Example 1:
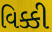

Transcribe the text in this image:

વિક્કી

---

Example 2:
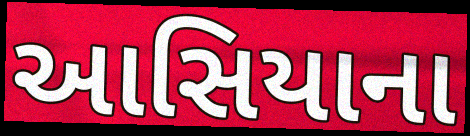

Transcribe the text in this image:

આસિયાના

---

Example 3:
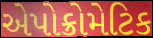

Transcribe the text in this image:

એપોક્રોમેટિક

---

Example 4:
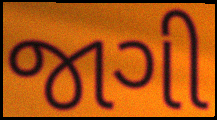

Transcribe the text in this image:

જાગી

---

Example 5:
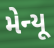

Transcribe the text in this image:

મેન્યૂ